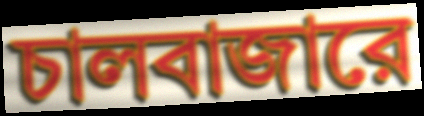
চালবাজারে